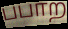
பபாற